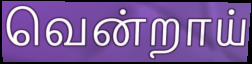
வென்றாய்